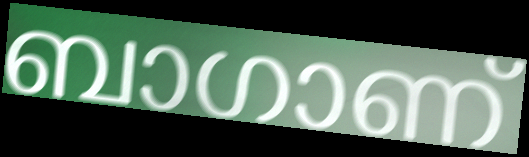
ബാഗാണ്